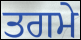
ਤਗਮੇ